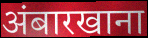
अंबारखाना